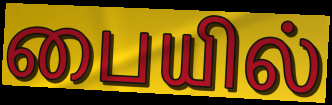
பையில்